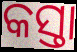
କସ୍ତା